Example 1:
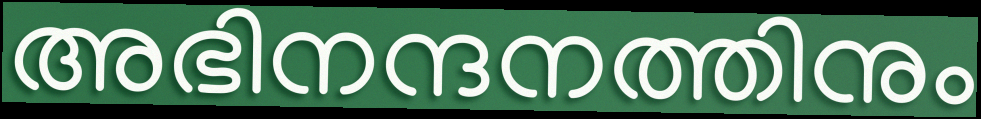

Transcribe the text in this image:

അഭിനന്ദനത്തിനും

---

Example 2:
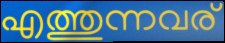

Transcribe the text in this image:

എത്തുന്നവര്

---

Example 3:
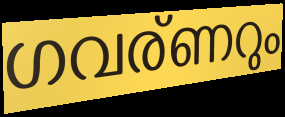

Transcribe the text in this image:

ഗവര്ണറും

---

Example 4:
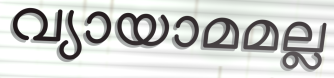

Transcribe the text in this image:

വ്യായാമമല്ല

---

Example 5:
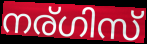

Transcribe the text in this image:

നര്ഗിസ്